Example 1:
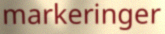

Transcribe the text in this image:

markeringer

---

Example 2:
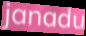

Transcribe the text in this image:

janadu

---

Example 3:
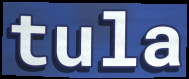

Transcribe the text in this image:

tula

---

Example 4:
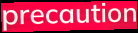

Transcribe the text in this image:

precaution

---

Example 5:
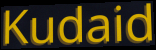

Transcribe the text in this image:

Kudaid